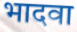
भादवा